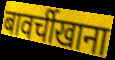
बावर्चीखाना